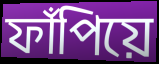
ফাঁপিয়ে